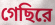
গেছিরে